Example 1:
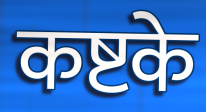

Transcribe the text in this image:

कष्टके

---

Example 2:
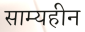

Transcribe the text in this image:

साम्यहीन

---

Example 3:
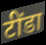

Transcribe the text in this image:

टींडा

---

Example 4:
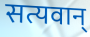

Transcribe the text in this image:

सत्यवान्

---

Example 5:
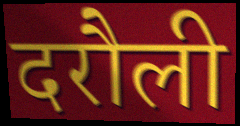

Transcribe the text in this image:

दरौली